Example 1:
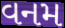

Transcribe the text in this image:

વનમ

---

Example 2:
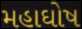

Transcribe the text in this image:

મહાઘોષ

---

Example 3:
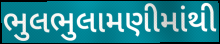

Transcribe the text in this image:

ભુલભુલામણીમાંથી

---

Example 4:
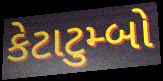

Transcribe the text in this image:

કેટાટુમ્બો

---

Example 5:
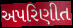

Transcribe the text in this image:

અપરિણીત